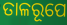
ତାଳରୂପେ